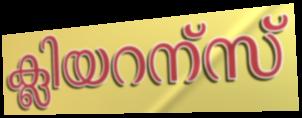
ക്ലിയറന്സ്